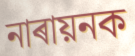
নাৰায়নক